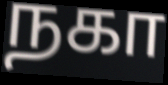
நகா